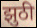
झुठी